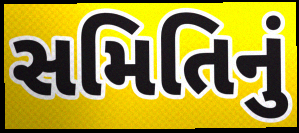
સમિતિનું